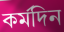
কৰ্মদিন